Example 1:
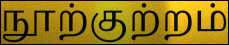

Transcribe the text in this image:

நூற்குற்றம்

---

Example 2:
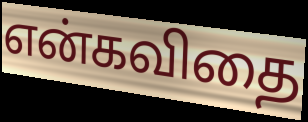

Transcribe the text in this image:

என்கவிதை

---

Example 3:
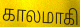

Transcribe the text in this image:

காலமாகி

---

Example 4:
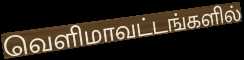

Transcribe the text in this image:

வெளிமாவட்டங்களில்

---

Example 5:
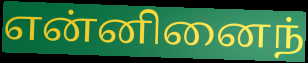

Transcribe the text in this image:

என்னினைந்